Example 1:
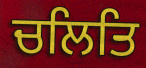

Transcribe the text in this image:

ਚਲਿਤਿ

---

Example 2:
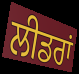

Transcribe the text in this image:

ਲੀਡਰਾਂ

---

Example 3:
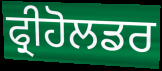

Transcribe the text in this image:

ਫ੍ਰੀਹੋਲਡਰ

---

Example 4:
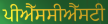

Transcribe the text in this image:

ਪੀਐੱਸਸੀਐੱਸਟੀ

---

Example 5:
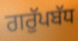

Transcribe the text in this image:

ਗਰੁੱਪਬੱਧ